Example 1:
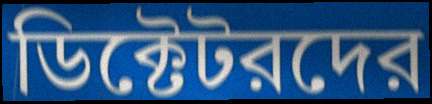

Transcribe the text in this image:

ডিক্টেটরদের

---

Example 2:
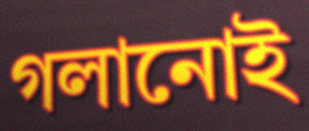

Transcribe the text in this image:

গলানোই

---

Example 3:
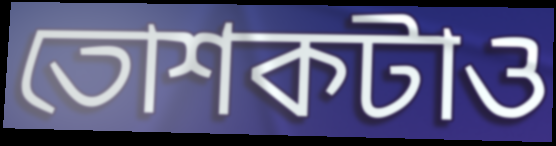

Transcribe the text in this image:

তোশকটাও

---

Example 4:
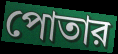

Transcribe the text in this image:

পোতার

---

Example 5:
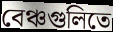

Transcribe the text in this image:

বেঞ্চগুলিতে